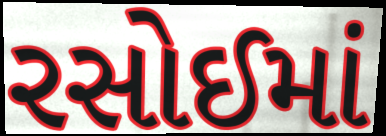
રસોઈમાં